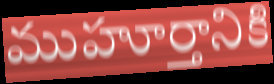
ముహూర్తానికి